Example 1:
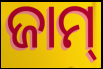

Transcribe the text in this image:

ଜାମ୍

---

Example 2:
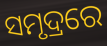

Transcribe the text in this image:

ସମୃଦ୍ରରେ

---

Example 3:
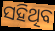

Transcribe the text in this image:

ସହିଥିବ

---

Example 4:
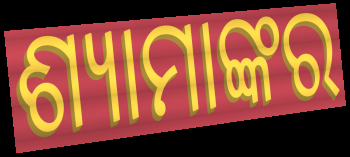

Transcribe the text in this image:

ଶ୍ୟାମାଙ୍କର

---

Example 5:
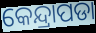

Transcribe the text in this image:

କେନ୍ଦ୍ରାପଡା